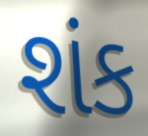
શંક